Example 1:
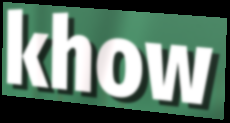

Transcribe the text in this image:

khow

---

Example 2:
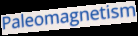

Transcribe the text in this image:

Paleomagnetism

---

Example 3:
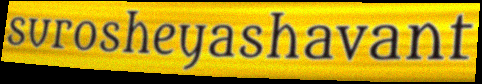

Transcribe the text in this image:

surosheyashavant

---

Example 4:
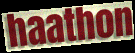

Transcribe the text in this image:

haathon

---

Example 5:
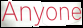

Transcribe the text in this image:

Anyone